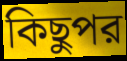
কিছুপর